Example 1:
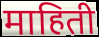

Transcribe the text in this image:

माहिती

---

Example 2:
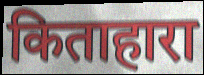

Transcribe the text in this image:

किताहारा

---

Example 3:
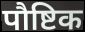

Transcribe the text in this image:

पौष्टिक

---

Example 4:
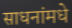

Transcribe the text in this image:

साधनांमधे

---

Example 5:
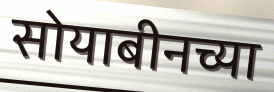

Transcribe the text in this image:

सोयाबीनच्या